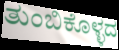
ತುಂಬಿಕೊಳ್ಳದ